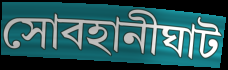
সোবহানীঘাট